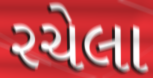
રચેલા